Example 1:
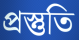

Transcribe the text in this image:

প্রস্তুতি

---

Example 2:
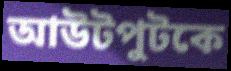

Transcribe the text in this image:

আউটপুটকে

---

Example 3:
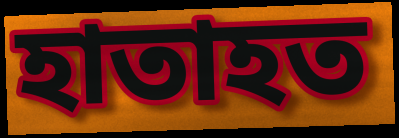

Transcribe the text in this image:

হাতাহত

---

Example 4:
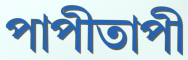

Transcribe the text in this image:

পাপীতাপী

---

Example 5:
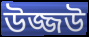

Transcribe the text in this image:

উজ্জউ